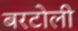
बरटोली